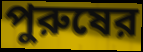
পুরুষের